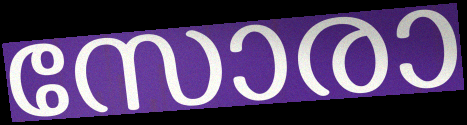
സോരാ